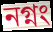
নগ্নং